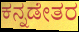
ಕನ್ನಡೇತರ